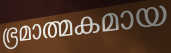
ഭ്രമാത്മകമായ